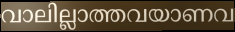
വാലില്ലാത്തവയാണവ